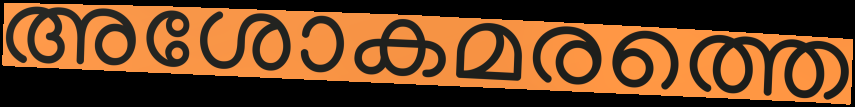
അശോകമരത്തെ